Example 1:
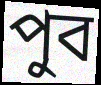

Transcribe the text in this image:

পুব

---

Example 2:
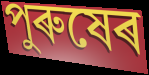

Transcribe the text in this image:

পুৰুষেৰ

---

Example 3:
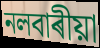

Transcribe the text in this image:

নলবাৰীয়া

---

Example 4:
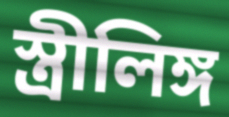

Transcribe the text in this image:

স্ত্ৰীলিঙ্গ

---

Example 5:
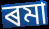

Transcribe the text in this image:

ৰমা